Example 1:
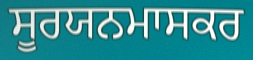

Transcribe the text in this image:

ਸੂਰਯਨਮਾਸਕਰ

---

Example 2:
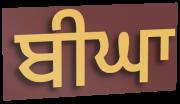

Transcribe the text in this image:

ਬੀਘਾ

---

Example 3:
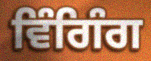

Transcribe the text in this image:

ਵਿੰਗਿੰਗ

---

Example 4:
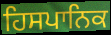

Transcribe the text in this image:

ਹਿਸਪਾਨਿਕ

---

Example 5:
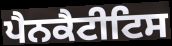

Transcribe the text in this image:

ਪੈਨਕੈਟੀਟਿਸ